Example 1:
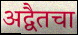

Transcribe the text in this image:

अद्वैतचा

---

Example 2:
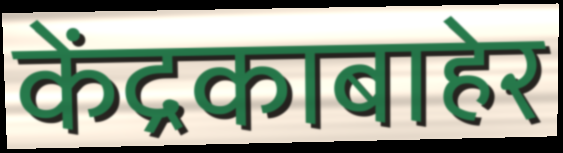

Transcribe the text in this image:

केंद्रकाबाहेर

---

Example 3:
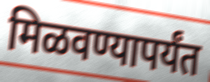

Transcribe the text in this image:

मिळवण्यापर्यंत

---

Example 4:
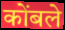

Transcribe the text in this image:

कोंबले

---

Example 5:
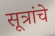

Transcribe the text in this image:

सूत्रांचे